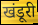
खंडूरी